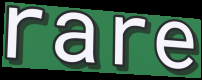
rare